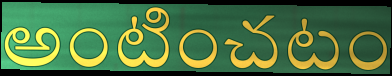
అంటించటం